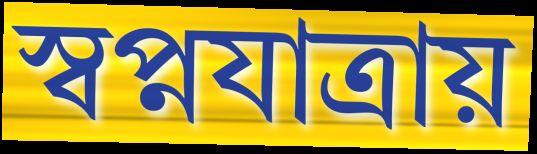
স্বপ্নযাত্রায়